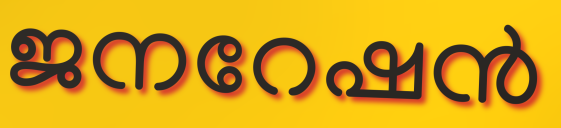
ജനറേഷൻ